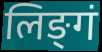
लिङ्गं